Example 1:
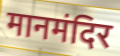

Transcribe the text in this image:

मानमंदिर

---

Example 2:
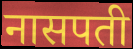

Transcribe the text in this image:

नासपती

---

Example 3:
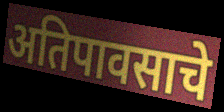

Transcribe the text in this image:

अतिपावसाचे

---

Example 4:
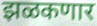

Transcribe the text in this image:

झळकणार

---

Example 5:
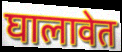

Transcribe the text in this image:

घालावेत